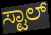
ಸ್ಟಾಲ್